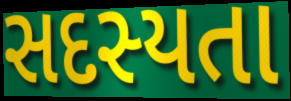
સદસ્યતા